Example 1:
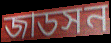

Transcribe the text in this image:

জাডসন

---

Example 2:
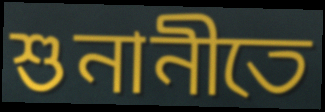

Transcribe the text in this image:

শুনানীতে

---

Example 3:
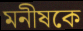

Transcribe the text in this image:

মনীষকে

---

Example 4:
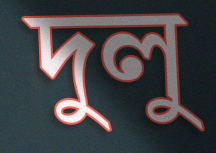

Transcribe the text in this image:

দুলু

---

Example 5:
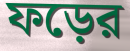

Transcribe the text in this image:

ফড়ের